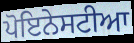
ਪੋਇਨੇਸਟੀਆ